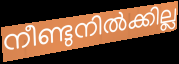
നീണ്ടുനിൽക്കില്ല